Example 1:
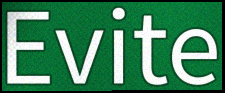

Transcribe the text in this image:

Evite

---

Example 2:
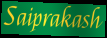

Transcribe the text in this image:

Saiprakash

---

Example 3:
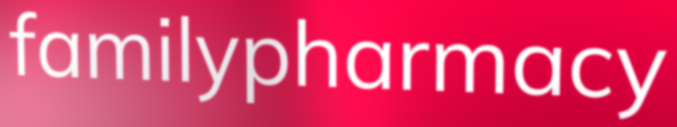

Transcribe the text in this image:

familypharmacy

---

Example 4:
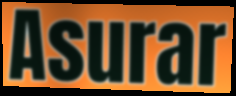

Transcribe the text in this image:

Asurar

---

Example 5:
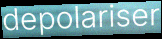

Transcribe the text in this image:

depolariser